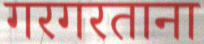
गरगरताना